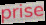
prise